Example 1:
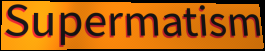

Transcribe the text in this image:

Supermatism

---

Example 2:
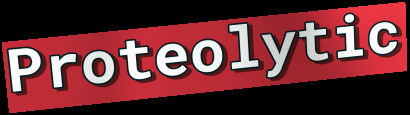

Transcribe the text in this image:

Proteolytic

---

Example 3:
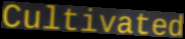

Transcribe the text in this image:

Cultivated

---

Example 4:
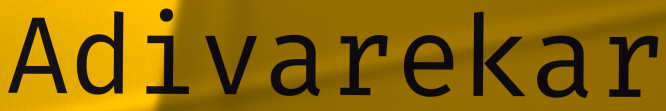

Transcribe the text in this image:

Adivarekar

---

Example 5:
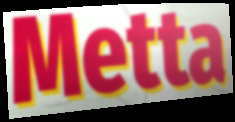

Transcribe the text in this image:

Metta